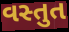
વસ્તુત